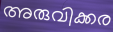
അരുവിക്കര